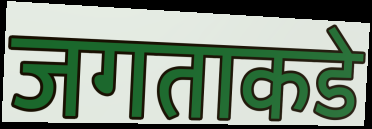
जगताकडे